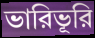
ভারিভূরি